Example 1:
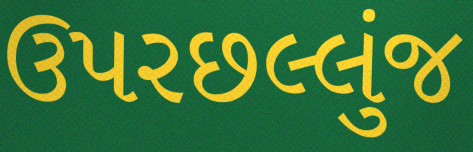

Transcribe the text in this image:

ઉપરછલ્લુંજ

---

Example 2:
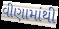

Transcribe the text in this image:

વીણામાંથી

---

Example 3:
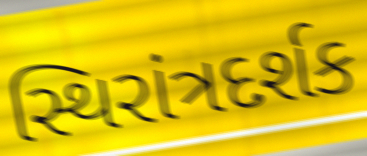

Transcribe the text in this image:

સ્થિરાંત્રદર્શક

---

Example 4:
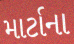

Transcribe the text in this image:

માર્ટાના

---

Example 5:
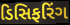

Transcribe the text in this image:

ડિસિફરિંગ